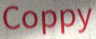
Coppy